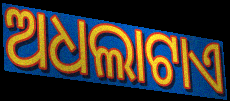
ଅଧଲାଟାଏ